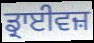
ਡ੍ਰਾਈਵਜ਼